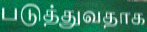
படுத்துவதாக